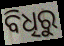
ବିଧିରୁ